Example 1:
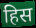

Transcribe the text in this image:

हिस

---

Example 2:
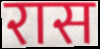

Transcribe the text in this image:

रास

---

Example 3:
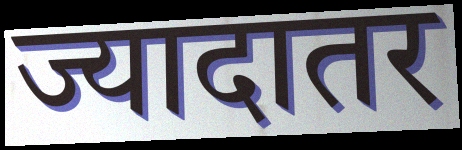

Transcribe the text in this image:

ज्‍यादातर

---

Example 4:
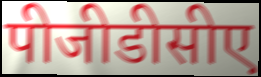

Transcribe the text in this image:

पीजीडीसीए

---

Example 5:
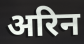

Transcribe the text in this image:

अरिन